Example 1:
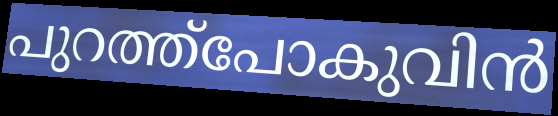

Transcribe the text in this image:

പുറത്ത്പോകുവിൻ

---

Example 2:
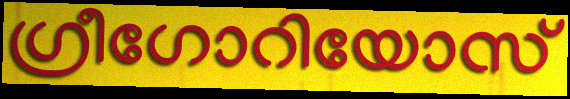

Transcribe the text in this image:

ഗ്രീഗോറിയോസ്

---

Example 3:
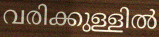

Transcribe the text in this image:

വരിക്കുള്ളിൽ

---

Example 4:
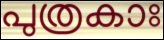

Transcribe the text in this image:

പുത്രകാഃ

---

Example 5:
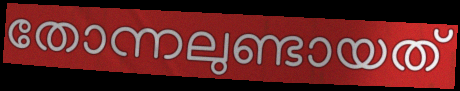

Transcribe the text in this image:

തോന്നലുണ്ടായത്